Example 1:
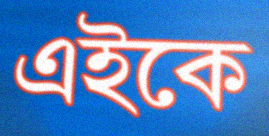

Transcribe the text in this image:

এইকে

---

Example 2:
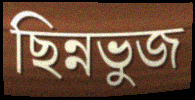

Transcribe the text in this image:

ছিন্নভুজ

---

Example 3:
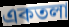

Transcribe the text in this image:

একতলা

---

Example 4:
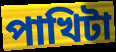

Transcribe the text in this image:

পাখিটা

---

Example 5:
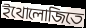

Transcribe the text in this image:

ইথোলোজিতে